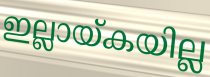
ഇല്ലായ്കയില്ല